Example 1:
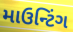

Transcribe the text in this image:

માઉન્ટિંગ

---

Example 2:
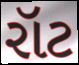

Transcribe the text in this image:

રૉટ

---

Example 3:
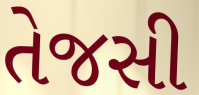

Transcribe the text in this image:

તેજસી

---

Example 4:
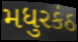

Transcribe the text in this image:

મધુરકંઠ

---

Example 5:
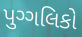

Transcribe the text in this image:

પુગ્ગલિકો